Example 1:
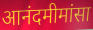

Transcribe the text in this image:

आनंदमीमांसा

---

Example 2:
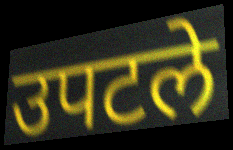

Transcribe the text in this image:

उपटले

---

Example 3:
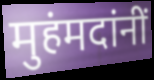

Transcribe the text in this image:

मुहंमदांनीं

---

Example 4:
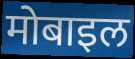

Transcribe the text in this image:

मोबाइल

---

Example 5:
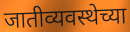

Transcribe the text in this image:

जातीव्यवस्थेच्या